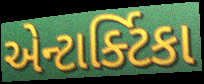
એન્ટાર્ક્ટિકા